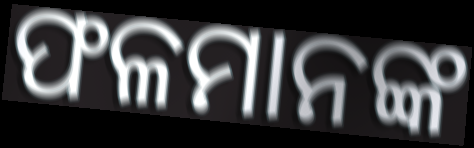
ଫଳମାନଙ୍କ